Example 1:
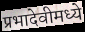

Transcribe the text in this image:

प्रभादेवीमध्ये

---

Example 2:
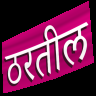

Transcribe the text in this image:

ठरतील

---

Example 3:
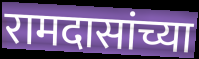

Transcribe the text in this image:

रामदासांच्या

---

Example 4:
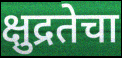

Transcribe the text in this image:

क्षुद्रतेचा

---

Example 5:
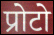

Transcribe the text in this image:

प्रोटो